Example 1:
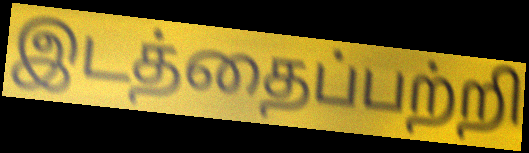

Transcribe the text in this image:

இடத்தைப்பற்றி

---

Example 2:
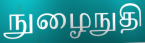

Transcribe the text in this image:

நுழைநுதி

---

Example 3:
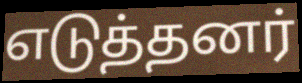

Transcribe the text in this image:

எடுத்தனர்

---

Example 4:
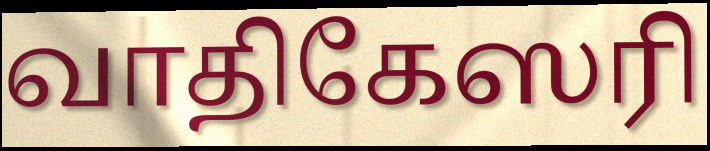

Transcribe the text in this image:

வாதிகேஸரி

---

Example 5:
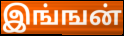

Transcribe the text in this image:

இங்ஙன்